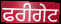
ਫਰੀਗੇਟ